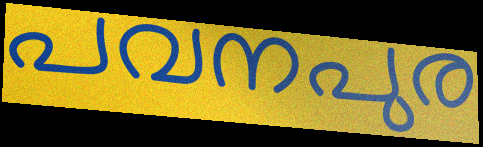
പവനപുര